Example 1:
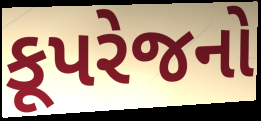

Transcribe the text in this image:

કૂપરેજનો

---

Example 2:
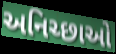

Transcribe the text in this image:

અનિચ્છાઓ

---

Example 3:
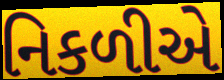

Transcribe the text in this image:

નિકળીએ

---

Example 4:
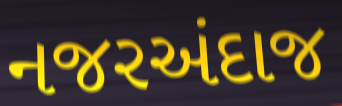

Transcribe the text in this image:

નજરઅંદાજ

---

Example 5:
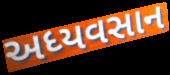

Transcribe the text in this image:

અધ્યવસાન